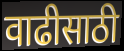
वाढीसाठी